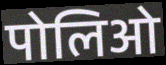
पोलिओ